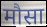
मौसा